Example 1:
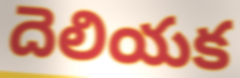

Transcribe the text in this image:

దెలియక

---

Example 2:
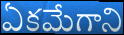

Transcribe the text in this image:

ఏకమేగాని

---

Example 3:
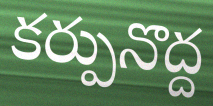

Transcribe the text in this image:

కర్పునొద్ద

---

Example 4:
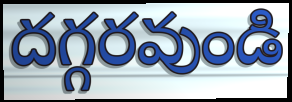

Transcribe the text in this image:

దగ్గరవుండి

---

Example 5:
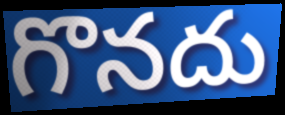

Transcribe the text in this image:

గొనదు